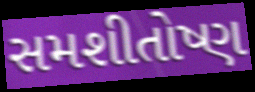
સમશીતોષ્ણ